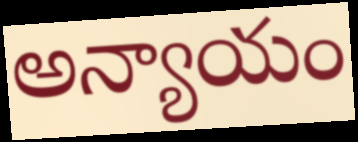
అన్యాయం